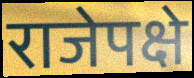
राजेपक्षे